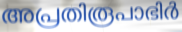
അപ്രതിരൂപാഭിർ